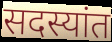
सदस्यांत